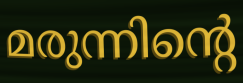
മരുന്നിന്റെ